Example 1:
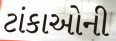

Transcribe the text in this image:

ટાંકાઓની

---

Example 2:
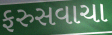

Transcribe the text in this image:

ફરુસવાચા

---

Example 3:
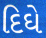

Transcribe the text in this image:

દિઘે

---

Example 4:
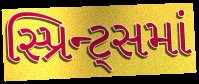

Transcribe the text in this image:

સ્પ્રિન્ટ્સમાં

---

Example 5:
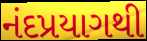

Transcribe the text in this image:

નંદપ્રયાગથી